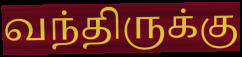
வந்திருக்கு